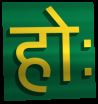
होः